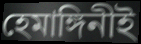
হেমাঙ্গিনীই